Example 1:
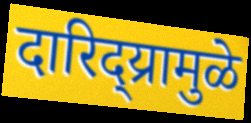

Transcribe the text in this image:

दारिद्य्रामुळे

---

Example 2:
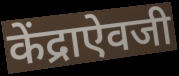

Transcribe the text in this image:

केंद्राऐवजी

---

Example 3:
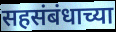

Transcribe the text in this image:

सहसंबंधाच्या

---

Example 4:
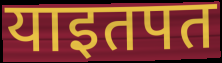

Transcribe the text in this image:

याइतपत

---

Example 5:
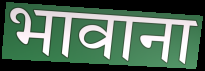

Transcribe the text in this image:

भावाना